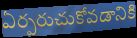
ఏర్పరుచుకోవడానికి